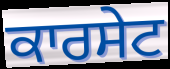
ਕਾਰਸੇਟ